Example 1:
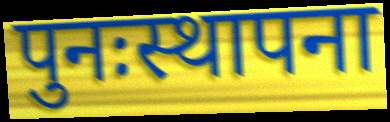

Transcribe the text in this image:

पुनःस्थापना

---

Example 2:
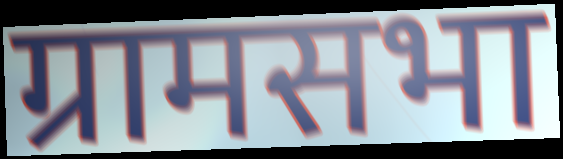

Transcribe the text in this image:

ग्रामसभा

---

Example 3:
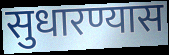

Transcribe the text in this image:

सुधारण्यास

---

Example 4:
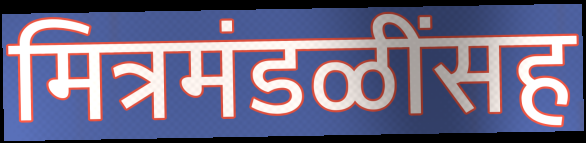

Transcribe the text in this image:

मित्रमंडळींसह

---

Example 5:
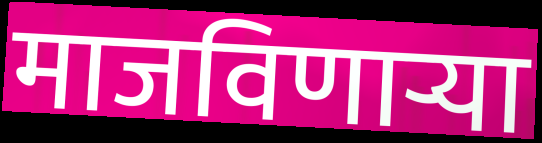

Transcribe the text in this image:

माजविणाऱ्या